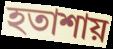
হতাশায়